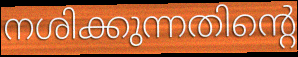
നശിക്കുന്നതിന്റെ